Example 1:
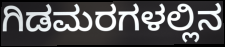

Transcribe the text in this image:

ಗಿಡಮರಗಳಲ್ಲಿನ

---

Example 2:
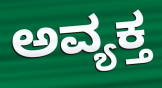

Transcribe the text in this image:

ಅವ್ಯಕ್ತ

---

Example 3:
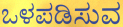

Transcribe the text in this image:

ಒಳಪಡಿಸುವ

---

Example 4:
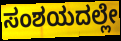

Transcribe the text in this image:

ಸಂಶಯದಲ್ಲೇ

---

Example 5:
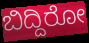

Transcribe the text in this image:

ಬಿದ್ದಿರೋ